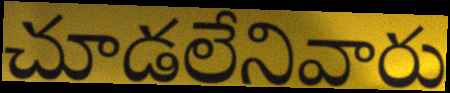
చూడలేనివారు